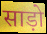
साड़ो